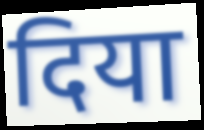
दिया